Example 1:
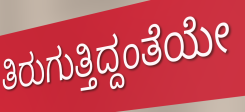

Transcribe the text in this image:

ತಿರುಗುತ್ತಿದ್ದಂತೆಯೇ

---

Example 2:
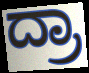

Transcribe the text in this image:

ದ್ರಾ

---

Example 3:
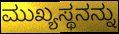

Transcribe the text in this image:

ಮುಖ್ಯಸ್ಥನನ್ನು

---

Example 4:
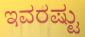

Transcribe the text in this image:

ಇವರಷ್ಟು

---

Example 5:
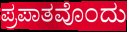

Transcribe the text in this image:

ಪ್ರಪಾತವೊಂದು